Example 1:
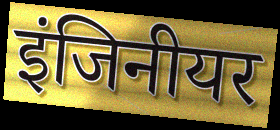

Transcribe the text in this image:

इंजिनीयर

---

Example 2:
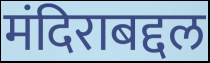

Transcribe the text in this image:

मंदिराबद्दल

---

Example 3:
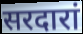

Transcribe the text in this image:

सरदारां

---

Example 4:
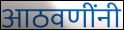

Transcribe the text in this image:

आठवणींनी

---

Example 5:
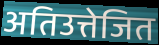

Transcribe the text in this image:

अतिउत्तेजित